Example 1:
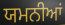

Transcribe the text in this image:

ਯਮਨੀਆਂ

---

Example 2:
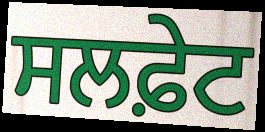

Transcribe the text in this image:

ਸਲਫ਼ੇਟ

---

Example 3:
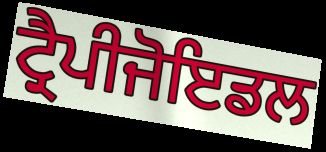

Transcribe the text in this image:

ਟ੍ਰੈਪੀਜੋਇਡਲ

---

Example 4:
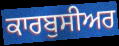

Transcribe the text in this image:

ਕਾਰਬੁਸੀਅਰ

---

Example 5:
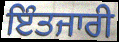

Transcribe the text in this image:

ਇੰਤਜਾਰੀ